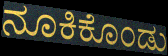
ನೂಕಿಕೊಂಡು